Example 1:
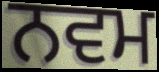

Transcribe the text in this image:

ਨਵਮ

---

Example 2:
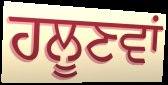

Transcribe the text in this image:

ਹਲੂਣਵਾਂ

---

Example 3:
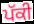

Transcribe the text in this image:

ਪੱਕੀ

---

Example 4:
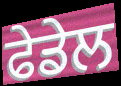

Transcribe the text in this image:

ਫੇਡੇਲ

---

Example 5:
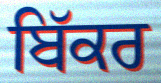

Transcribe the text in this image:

ਬਿੱਕਰ